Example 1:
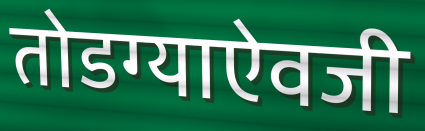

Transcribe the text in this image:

तोडग्याऐवजी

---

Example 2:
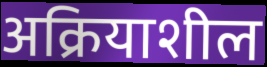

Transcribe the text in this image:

अक्रियाशील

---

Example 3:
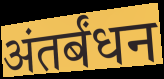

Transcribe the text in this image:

अंतर्बंधन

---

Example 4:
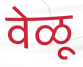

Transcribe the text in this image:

वेळू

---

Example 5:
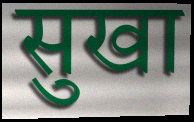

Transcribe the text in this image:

सुखा